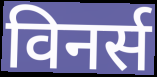
विनर्स